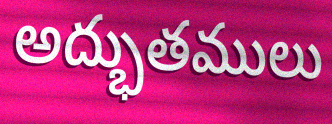
అద్భుతములు